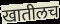
खातीलच